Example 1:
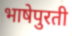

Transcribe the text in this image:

भाषेपुरती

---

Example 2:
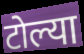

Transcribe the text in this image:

टोल्या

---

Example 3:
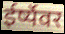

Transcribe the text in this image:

ईर्ष्येवर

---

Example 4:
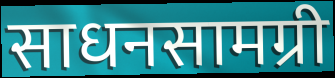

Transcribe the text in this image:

साधनसामग्री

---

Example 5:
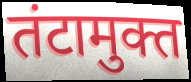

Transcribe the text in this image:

तंटामुक्त